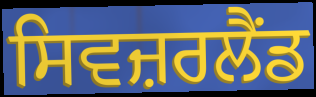
ਸਿਵਜ਼ਰਲੈਂਡ